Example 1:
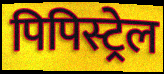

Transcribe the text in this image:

पिपिस्ट्रेल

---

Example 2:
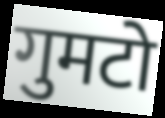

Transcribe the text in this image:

गुमटो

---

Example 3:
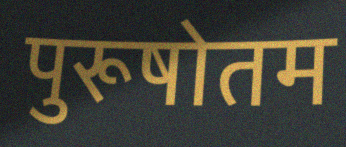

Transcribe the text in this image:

पुरूषोतम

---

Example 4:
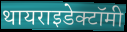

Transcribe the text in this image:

थायराइडेक्टॉमी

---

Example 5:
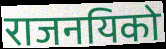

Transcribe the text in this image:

राजनयिको